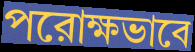
পরোক্ষভাবে